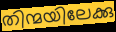
തിന്മയിലേക്കു